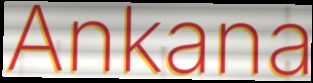
Ankana